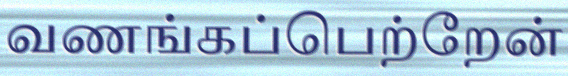
வணங்கப்பெற்றேன்